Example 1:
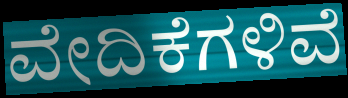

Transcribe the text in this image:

ವೇದಿಕೆಗಳಿವೆ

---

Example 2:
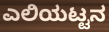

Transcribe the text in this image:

ಎಲಿಯಟ್ಟನ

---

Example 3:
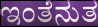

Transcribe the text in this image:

ಇಂತೆನುತ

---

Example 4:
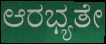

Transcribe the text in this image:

ಆರಭ್ಯತೇ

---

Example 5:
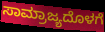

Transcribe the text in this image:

ಸಾಮ್ರಾಜ್ಯದೊಳಗೆ